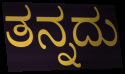
ತನ್ನದು